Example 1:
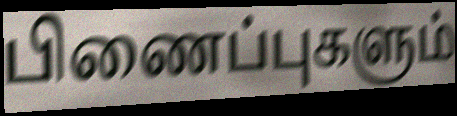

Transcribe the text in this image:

பிணைப்புகளும்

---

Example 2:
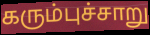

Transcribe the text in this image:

கரும்புச்சாறு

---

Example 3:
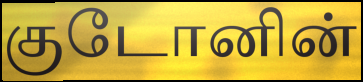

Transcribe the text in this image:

குடோனின்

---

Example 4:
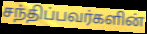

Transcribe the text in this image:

சந்திப்பவர்களின்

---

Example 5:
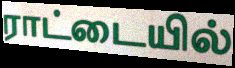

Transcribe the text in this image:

ராட்டையில்